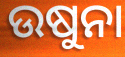
ଉଷୁନା